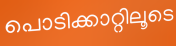
പൊടിക്കാറ്റിലൂടെ